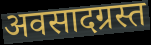
अवसादग्रस्त